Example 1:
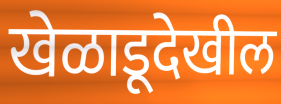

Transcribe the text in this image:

खेळाडूदेखील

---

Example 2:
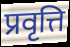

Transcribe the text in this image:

प्रवृत्ति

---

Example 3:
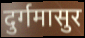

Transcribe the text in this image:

दुर्गमासुर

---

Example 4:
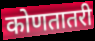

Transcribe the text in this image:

कोणतातरी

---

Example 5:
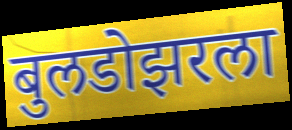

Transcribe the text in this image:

बुलडोझरला